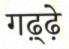
गढ़्ढ़े